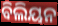
ବିଲିୟନ